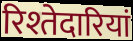
रिश्तेदारियां